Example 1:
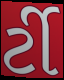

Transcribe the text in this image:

ર્ટી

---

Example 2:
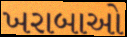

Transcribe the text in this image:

ખરાબાઓ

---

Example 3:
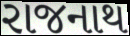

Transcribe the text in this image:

રાજનાથ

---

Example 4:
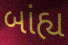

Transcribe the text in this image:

બાંહ્ય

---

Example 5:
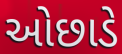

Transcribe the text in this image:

ઓછાડે